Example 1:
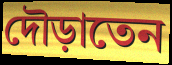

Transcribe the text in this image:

দৌড়াতেন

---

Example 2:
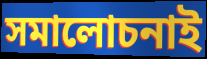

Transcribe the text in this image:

সমালোচনাই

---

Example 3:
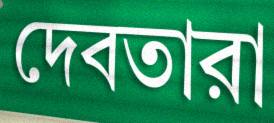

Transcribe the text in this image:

দেবতারা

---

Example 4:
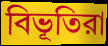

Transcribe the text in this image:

বিভূতিরা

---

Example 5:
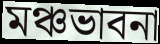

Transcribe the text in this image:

মঞ্চভাবনা